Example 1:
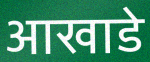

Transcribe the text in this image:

आखाडे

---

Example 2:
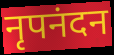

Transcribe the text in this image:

नृपनंदन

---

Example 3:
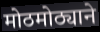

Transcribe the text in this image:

मोठमोठ्याने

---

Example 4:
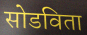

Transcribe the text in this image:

सोडविता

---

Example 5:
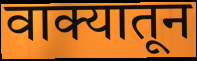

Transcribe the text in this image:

वाक्यातून